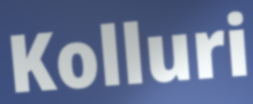
Kolluri